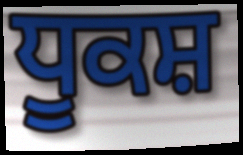
ਧੂਕਸ਼